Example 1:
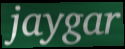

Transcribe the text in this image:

jaygar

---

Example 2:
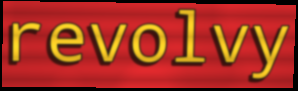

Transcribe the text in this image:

revolvy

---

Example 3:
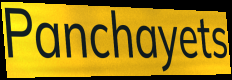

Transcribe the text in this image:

Panchayets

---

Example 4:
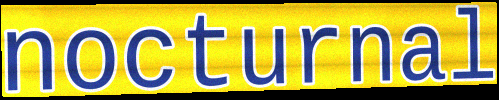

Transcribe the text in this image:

nocturnal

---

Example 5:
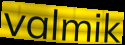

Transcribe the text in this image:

valmik